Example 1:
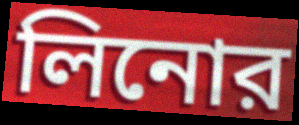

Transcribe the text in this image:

লিনোর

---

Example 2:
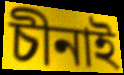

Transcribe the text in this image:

চীনাই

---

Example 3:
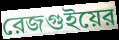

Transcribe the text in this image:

রেজগুইয়ের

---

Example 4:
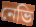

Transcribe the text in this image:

নেভি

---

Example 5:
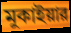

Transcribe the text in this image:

মুকাইয়ার